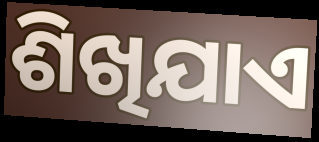
ଶିଖିଯାଏ